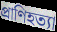
প্রাণিহত্যা